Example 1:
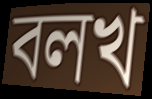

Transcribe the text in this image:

বলখ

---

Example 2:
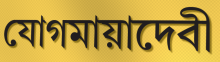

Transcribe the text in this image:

যোগমায়াদেবী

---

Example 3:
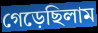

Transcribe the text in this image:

গেড়েছিলাম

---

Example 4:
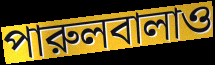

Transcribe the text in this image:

পারুলবালাও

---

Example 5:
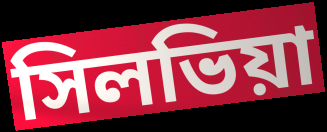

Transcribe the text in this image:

সিলভিয়া